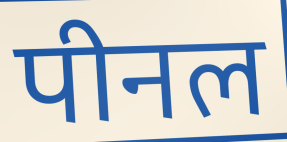
पीनल